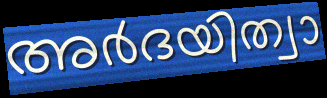
അർദയിത്വാ